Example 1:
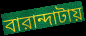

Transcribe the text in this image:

বারান্দাটায়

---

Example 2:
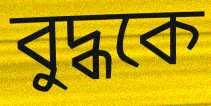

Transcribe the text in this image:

বুদ্ধকে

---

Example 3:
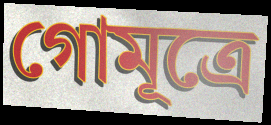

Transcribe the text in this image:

গোমূত্রে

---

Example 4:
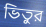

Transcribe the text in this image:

ভিতুর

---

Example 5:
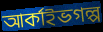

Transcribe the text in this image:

আর্কাইভগল্প